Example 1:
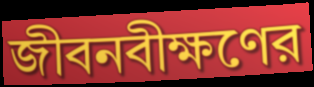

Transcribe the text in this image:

জীবনবীক্ষণের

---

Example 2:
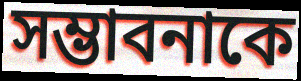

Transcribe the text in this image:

সম্ভাবনাকে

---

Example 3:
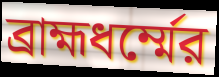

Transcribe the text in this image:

ব্রাহ্মধর্ম্মের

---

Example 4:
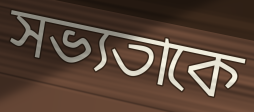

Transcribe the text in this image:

সভ্যতাকে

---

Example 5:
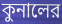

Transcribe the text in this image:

কুনালের